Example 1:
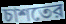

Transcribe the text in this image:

চাশতের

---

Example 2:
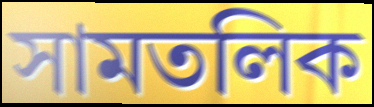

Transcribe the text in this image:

সামতলিক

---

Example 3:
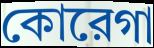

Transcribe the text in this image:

কোরেগা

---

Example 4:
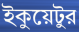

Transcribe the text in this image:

ইকুয়েটুর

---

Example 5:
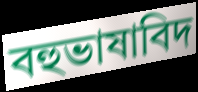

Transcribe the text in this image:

বহুভাষাবিদ